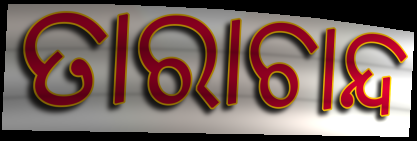
ତାରାଚାନ୍ଦ